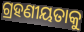
ଗ୍ରହଣୀୟତାକୁ